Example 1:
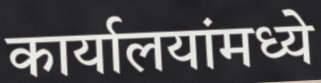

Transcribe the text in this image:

कार्यालयांमध्ये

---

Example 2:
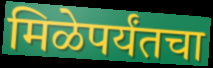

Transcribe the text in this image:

मिळेपर्यंतचा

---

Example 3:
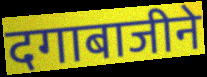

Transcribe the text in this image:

दगाबाजीने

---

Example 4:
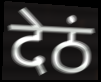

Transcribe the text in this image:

देठं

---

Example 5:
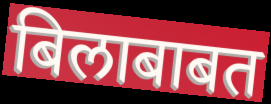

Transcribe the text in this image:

बिलाबाबत